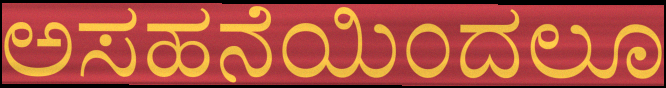
ಅಸಹನೆಯಿಂದಲೂ